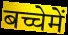
बच्चेमें